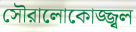
সৌরালোকোজ্জ্বল